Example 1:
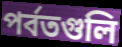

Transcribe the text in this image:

পর্বতগুলি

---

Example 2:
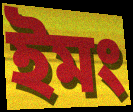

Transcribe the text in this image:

ইমং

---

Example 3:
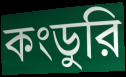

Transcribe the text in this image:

কংডুরি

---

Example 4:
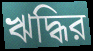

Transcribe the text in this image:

ঋদ্ধির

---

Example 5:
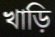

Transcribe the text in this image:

খাড়ি